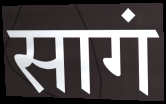
सागं